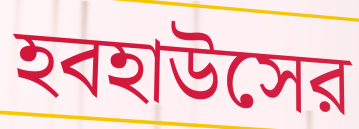
হবহাউসের